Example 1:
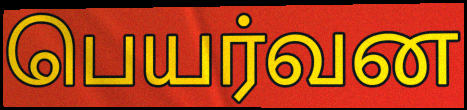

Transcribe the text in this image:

பெயர்வன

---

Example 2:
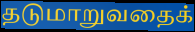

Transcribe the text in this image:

தடுமாறுவதைக்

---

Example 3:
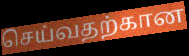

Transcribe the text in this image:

செய்வதற்கான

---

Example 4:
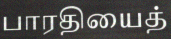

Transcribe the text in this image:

பாரதியைத்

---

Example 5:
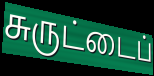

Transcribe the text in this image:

சுருட்டைப்